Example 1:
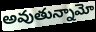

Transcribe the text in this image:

అవుతున్నామో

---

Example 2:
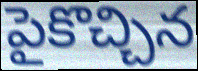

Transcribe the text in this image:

పైకొచ్చిన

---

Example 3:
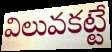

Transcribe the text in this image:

విలువకట్టే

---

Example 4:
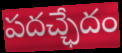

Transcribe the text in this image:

పదచ్ఛేదం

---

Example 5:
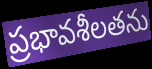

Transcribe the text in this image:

ప్రభావశీలతను